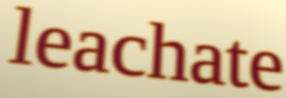
leachate